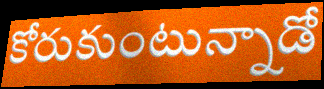
కోరుకుంటున్నాడో